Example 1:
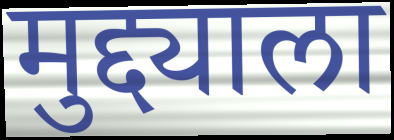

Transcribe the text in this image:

मुद्द्याला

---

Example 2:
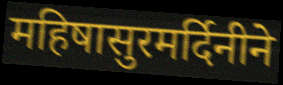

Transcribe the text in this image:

महिषासुरमर्दिनीने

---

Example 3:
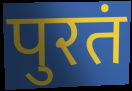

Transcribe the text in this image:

पुरतं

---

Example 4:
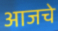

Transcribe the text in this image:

आजचे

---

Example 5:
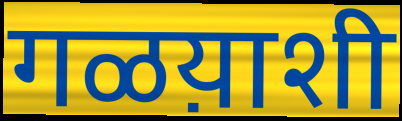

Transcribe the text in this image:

गळय़ाशी